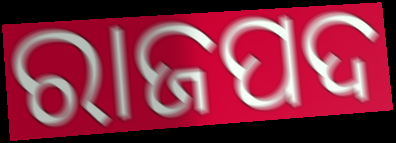
ରାଜପଦ